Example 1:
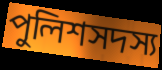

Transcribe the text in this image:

পুলিশসদস্য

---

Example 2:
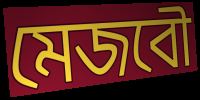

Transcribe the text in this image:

মেজবৌ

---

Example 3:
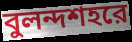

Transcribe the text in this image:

বুলন্দশহরে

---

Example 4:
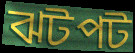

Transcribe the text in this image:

ঝটপট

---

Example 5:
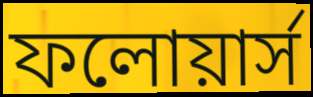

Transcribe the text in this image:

ফলোয়ার্স